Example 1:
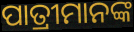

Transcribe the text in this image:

ପାତ୍ରୀମାନଙ୍କ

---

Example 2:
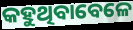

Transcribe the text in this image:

କହୁଥିବାବେଳେ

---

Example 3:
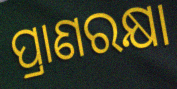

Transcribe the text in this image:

ପ୍ରାଣରକ୍ଷା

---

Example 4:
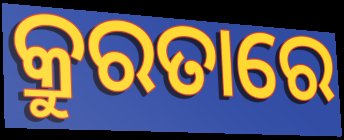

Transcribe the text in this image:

କ୍ରୁରତାରେ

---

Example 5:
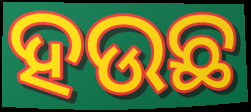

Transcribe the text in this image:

ହଉଛ